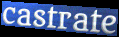
castrate